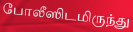
போலீஸிடமிருந்து